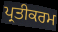
ਪ੍ਰਤੀਕਰਮ